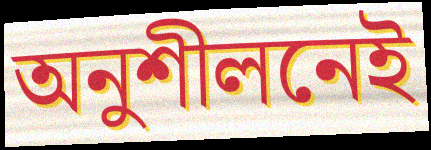
অনুশীলনেই